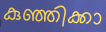
കുഞ്ഞിക്കാ